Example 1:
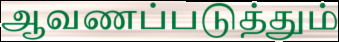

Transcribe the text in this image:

ஆவணப்படுத்தும்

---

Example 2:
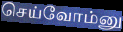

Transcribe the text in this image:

செய்வோம்னு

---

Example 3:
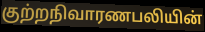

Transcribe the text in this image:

குற்றநிவாரணபலியின்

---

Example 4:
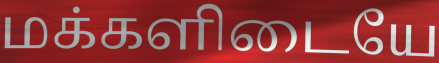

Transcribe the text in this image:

மக்களிடையே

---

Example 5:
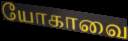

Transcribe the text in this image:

யோகாவை